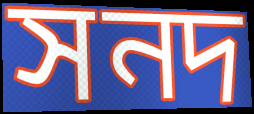
সনদ